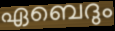
ഏബെദും